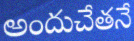
అందుచేతనే